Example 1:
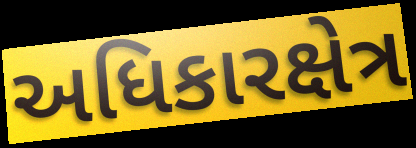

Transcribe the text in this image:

અધિકારક્ષેત્ર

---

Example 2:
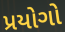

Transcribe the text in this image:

પ્રયોગો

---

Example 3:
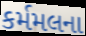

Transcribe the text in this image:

કર્મમલના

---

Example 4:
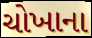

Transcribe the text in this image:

ચોખાના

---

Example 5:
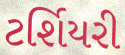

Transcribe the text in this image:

ટર્શિયરી